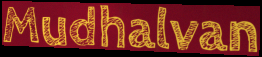
Mudhalvan